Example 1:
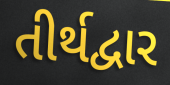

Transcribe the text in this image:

તીર્થદ્વાર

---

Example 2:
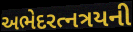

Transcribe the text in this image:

અભેદરત્નત્રયની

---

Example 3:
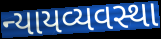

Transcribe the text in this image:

ન્યાયવ્યવસ્થા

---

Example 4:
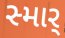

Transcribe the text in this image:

સ્માર્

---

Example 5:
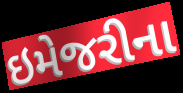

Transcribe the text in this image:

ઇમેજરીના